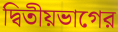
দ্বিতীয়ভাগের